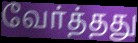
வேர்த்தது